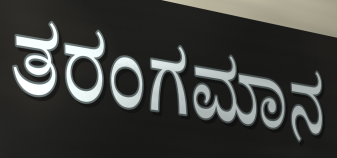
ತರಂಗಮಾನ